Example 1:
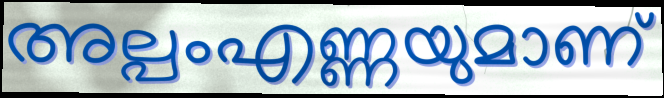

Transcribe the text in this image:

അല്പംഎണ്ണയുമാണ്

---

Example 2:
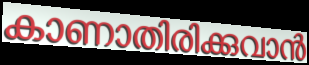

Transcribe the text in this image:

കാണാതിരിക്കുവാൻ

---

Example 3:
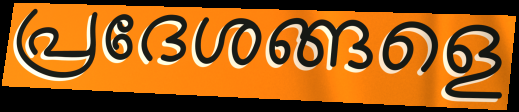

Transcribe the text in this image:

പ്രദേശങ്ങളെ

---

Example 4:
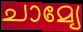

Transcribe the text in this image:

ചാമ്യേ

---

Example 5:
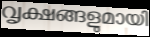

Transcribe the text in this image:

വൃക്ഷങ്ങളുമായി